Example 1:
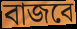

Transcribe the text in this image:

বাজবে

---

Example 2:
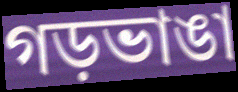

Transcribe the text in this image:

গড়ভাঙা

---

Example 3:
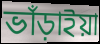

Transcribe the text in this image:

ভাঁড়াইয়া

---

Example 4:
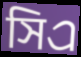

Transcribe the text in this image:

সিএ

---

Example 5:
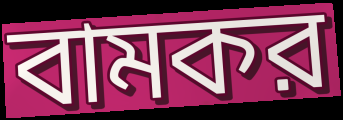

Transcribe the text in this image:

বামকর